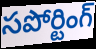
సపోర్టింగ్